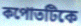
কপোতটিকে